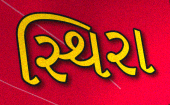
સ્થિરા